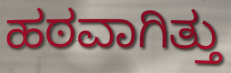
ಹಠವಾಗಿತ್ತು